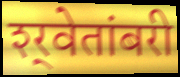
श्र्वेतांबरी